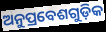
ଅନୁପ୍ରବେଶଗୁଡ଼ିକ